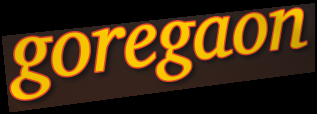
goregaon